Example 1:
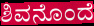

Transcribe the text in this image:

ಶಿವನೊಂದೆ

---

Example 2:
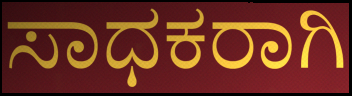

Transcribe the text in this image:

ಸಾಧಕರಾಗಿ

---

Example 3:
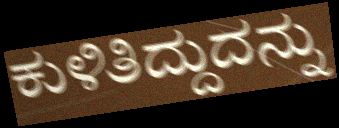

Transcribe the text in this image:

ಕುಳಿತಿದ್ದುದನ್ನು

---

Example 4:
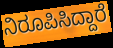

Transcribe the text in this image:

ನಿರೂಪಿಸಿದ್ದಾರೆ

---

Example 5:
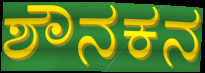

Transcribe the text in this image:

ಶೌನಕನ